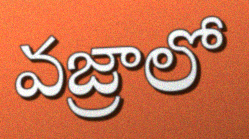
వజ్రాలో